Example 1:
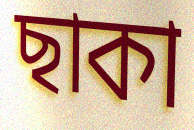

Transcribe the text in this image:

ছাকা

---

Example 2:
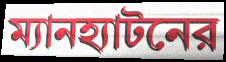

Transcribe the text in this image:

ম্যানহ্যাটনের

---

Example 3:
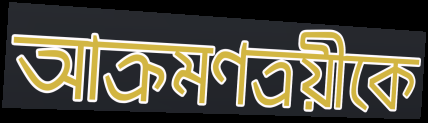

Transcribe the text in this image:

আক্রমণত্রয়ীকে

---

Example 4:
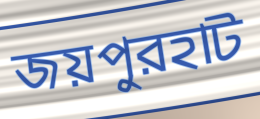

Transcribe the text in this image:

জয়পুরহাট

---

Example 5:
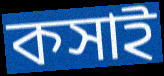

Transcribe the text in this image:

কসাই